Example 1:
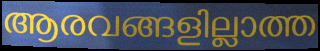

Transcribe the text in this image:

ആരവങ്ങളില്ലാത്ത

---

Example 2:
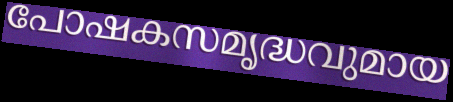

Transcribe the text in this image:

പോഷകസമൃദ്ധവുമായ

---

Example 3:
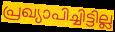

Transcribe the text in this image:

പ്രഖ്യാപിച്ചിട്ടില്ല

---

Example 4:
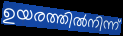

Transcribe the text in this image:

ഉയരത്തിൽനിന്ന്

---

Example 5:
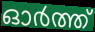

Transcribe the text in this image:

ഓർത്ത്